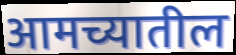
आमच्यातील